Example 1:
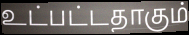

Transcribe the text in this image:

உட்பட்டதாகும்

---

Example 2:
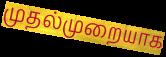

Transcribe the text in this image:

முதல்முறையாக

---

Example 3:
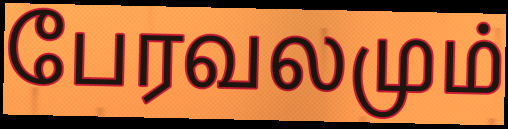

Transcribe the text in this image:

பேரவலமும்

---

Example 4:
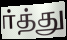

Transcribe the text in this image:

ர்த்து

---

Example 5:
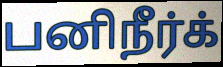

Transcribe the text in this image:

பனிநீர்க்